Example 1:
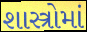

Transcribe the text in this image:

શાસ્ત્રોમાં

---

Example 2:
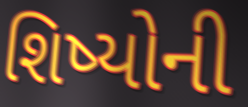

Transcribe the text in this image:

શિષ્યોની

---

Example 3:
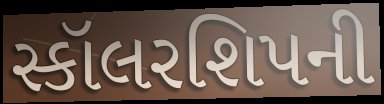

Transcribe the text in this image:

સ્કૉલરશિપની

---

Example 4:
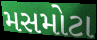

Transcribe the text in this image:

મસમોટા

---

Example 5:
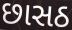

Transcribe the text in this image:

છાસઠ